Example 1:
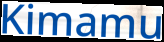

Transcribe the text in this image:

Kimamu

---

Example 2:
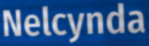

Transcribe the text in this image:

Nelcynda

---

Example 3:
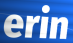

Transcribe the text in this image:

erin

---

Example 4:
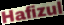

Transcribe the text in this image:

Hafizul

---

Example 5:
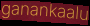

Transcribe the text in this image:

ganankaalu